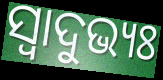
ସ୍ବାଦୁଭ୍ୟଃ